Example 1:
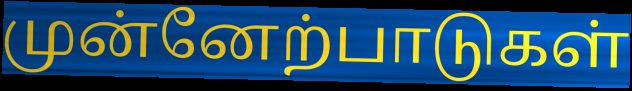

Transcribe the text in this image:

முன்னேற்பாடுகள்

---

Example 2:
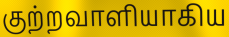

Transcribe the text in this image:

குற்றவாளியாகிய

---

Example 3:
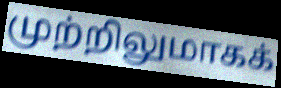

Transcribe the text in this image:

முற்றிலுமாகக்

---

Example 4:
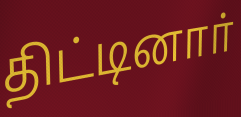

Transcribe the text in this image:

திட்டினார்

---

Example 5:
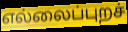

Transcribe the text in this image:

எல்லைப்புறச்